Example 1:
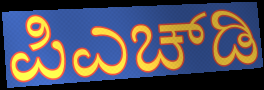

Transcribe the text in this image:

ಪಿಎಚ್‌ಡಿ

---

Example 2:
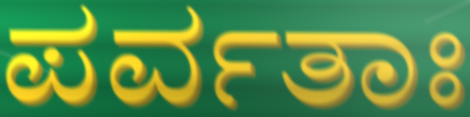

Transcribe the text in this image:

ಪರ್ವತಾಃ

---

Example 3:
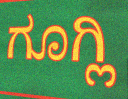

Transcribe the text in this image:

ಗೂಗ್ಲಿ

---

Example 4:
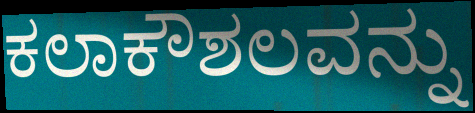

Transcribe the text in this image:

ಕಲಾಕೌಶಲವನ್ನು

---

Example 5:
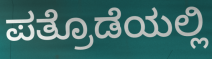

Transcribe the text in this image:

ಪತ್ರೊಡೆಯಲ್ಲಿ